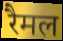
रैमल